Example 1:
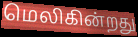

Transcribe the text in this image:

மெலிகின்றது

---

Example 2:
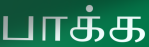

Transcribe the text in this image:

பாக்க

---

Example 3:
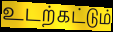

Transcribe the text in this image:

உடற்கட்டும்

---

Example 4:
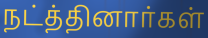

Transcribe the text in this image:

நட்த்தினார்கள்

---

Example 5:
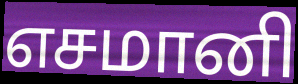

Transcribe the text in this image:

எசமானி